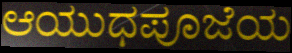
ಆಯುಧಪೂಜೆಯ